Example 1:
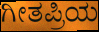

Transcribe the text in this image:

ಗೀತಪ್ರಿಯ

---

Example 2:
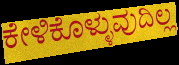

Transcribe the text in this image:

ಕೇಳಿಕೊಳ್ಳುವುದಿಲ್ಲ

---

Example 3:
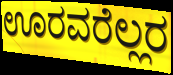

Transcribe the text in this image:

ಊರವರೆಲ್ಲರ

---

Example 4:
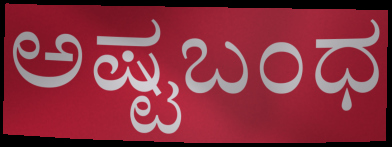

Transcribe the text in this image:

ಅಷ್ಟಬಂಧ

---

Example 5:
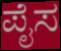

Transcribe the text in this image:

ಪೈಸ